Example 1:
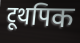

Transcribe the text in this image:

टूथपिक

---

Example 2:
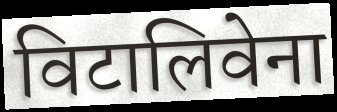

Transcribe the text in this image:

विटालिवेना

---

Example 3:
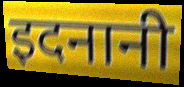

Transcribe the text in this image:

इदनानी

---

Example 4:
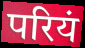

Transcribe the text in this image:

परियं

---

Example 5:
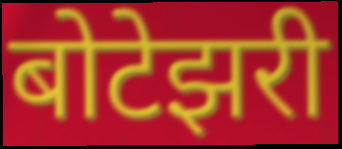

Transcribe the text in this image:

बोटेझरी